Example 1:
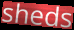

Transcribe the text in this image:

sheds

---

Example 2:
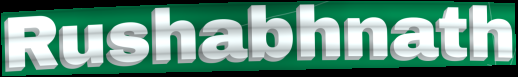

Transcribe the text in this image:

Rushabhnath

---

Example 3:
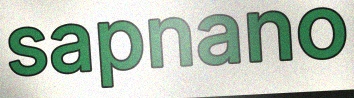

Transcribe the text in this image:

sapnano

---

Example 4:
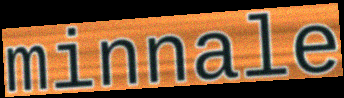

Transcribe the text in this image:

minnale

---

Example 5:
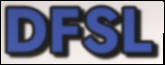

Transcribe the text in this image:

DFSL